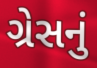
ગ્રેસનું